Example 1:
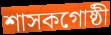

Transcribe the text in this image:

শাসকগোষ্ঠী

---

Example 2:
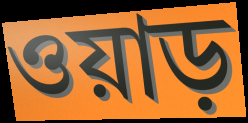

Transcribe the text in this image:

ওয়াড়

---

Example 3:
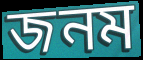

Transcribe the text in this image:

জনম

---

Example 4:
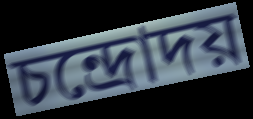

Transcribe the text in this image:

চন্দ্রোদয়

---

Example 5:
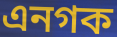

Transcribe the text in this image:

এনগক